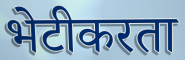
भेटीकरता